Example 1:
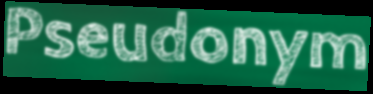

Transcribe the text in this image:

Pseudonym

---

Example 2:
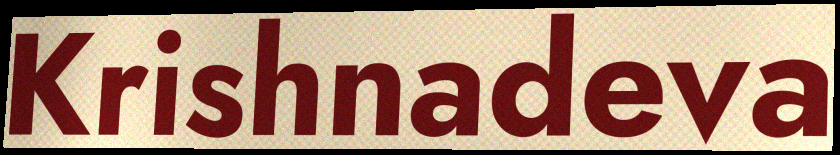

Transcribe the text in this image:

Krishnadeva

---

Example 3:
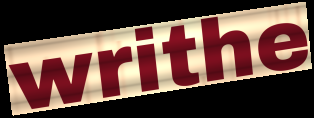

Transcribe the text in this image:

writhe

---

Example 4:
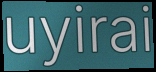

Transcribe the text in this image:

uyirai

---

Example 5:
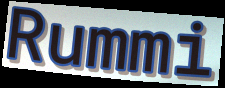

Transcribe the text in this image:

Rummi